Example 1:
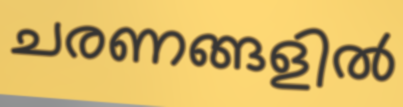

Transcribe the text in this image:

ചരണങ്ങളിൽ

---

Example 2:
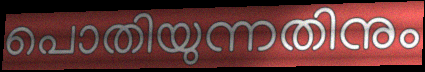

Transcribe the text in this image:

പൊതിയുന്നതിനും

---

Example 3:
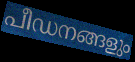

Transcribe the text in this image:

പീഡനങ്ങളും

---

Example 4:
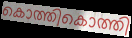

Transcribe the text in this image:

കൊത്തികൊത്തി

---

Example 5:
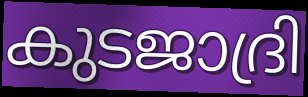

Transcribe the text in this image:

കുടജാദ്രി